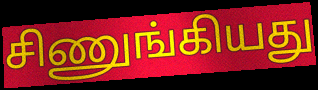
சிணுங்கியது